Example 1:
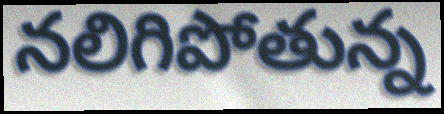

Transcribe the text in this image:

నలిగిపోతున్న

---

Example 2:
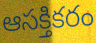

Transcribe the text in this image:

ఆసక్తికరం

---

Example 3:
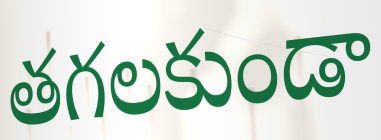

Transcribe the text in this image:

తగలకుండా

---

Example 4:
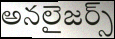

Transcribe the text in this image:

అనలైజర్స్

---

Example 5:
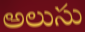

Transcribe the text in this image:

అలుసు